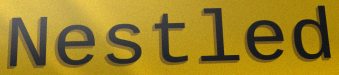
Nestled